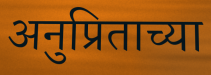
अनुप्रिताच्या